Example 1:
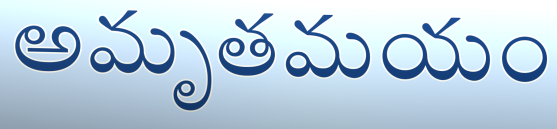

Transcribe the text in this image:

అమృతమయం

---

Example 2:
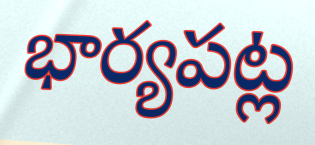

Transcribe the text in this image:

భార్యపట్ల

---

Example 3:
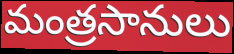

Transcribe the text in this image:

మంత్రసానులు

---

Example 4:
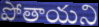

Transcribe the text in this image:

పోతాయని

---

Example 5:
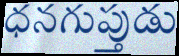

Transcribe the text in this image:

ధనగుప్తుడు